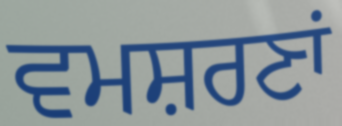
ਵਮਸ਼ਰਣਾਂ